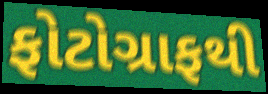
ફોટોગ્રાફથી